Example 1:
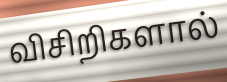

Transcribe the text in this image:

விசிறிகளால்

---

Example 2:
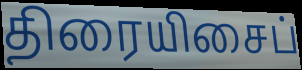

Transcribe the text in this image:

திரையிசைப்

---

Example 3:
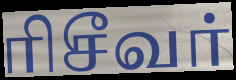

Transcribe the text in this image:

ரிசீவர்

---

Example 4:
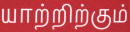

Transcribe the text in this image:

யாற்றிற்கும்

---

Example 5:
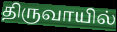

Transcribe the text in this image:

திருவாயில்